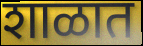
शाळात